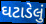
ઘટાડેલું